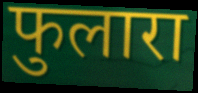
फुलारा